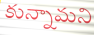
కున్నామని